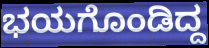
ಭಯಗೊಂಡಿದ್ದ